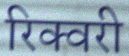
रिक्वरी